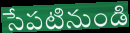
సేపటినుండి